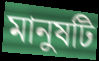
মানুষটি